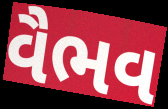
વૈભવ